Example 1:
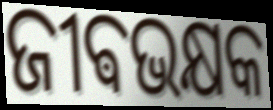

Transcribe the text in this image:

ଜୀଵଭକ୍ଷକ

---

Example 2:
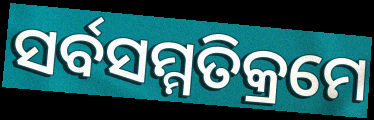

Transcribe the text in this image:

ସର୍ବସମ୍ମତିକ୍ରମେ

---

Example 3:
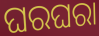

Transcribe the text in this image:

ଘରଘରା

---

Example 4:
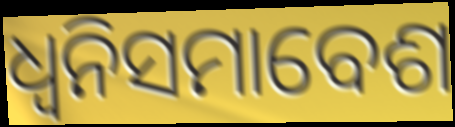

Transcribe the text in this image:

ଧ୍ୱନିସମାବେଶ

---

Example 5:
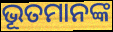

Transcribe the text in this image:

ଭୂତମାନଙ୍କ